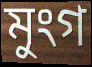
মুংগ